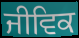
ਜੀਵਿਕ